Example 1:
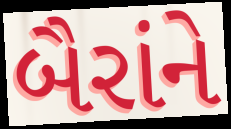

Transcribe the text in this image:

બૈરાંને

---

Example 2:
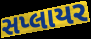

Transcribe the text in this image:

સપ્લાયર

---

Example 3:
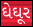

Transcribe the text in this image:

ઘેઘૂર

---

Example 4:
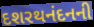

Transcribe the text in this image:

દશરથનંદનની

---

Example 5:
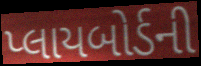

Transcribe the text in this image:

પ્લાયબોર્ડની